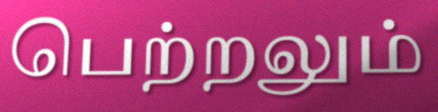
பெற்றலும்